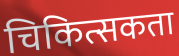
चिकित्सकता